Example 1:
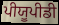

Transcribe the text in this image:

ਪੀਯੂਪੀਡੀ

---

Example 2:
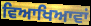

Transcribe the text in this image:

ਵਿਆਖਿਆਵਾਂ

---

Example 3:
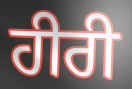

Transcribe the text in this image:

ਹੀਰੀ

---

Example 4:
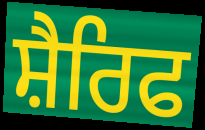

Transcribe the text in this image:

ਸ਼ੈਰਿਫ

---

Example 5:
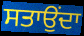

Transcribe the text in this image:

ਸਤਾਉਂਦਾ